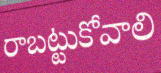
రాబట్టుకోవాలి